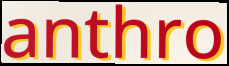
anthro